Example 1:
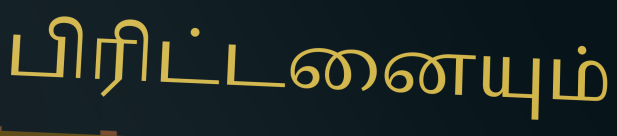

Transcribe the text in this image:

பிரிட்டனையும்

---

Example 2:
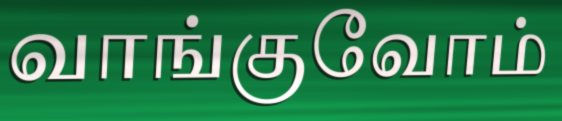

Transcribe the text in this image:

வாங்குவோம்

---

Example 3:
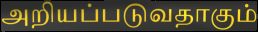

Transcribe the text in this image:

அறியப்படுவதாகும்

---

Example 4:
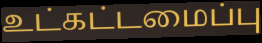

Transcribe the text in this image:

உட்கட்டமைப்பு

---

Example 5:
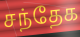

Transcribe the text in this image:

சந்தேக